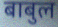
बाबुल